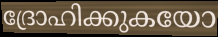
ദ്രോഹിക്കുകയോ